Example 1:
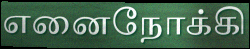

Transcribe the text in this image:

எனைநோக்கி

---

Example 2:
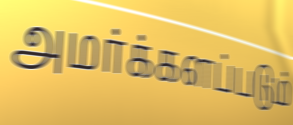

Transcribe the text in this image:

அமர்க்களப்படும்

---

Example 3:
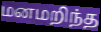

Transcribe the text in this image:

மனமறிந்த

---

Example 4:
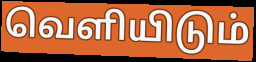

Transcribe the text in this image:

வெளியிடும்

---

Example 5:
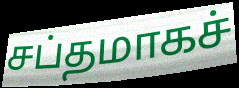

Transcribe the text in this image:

சப்தமாகச்